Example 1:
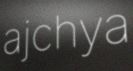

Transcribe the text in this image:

ajchya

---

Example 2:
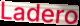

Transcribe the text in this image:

Ladero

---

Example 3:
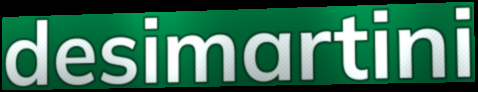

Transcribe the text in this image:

desimartini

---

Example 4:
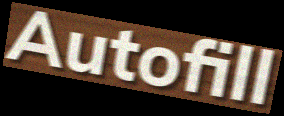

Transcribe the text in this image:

Autofill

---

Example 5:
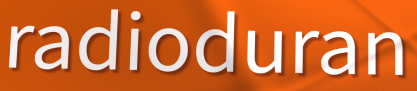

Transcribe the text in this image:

radioduran